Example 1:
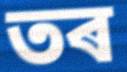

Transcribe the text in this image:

তৰ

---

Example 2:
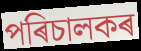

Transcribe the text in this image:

পৰিচালকৰ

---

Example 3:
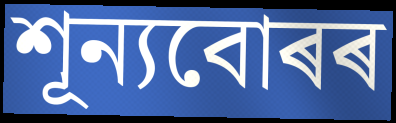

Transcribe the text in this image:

শূন্যবোৰৰ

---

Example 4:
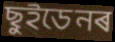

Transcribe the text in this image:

ছুইডেনৰ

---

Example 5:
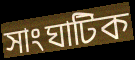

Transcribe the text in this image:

সাংঘাটিক